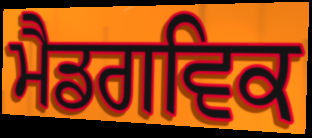
ਮੈਡਗਵਿਕ